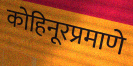
कोहिनूरप्रमाणे